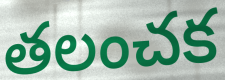
తలంచక